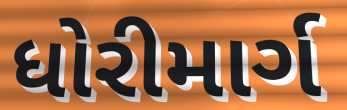
ધોરીમાર્ગ